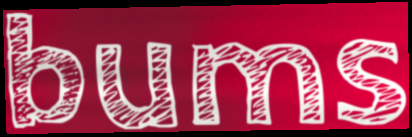
bums